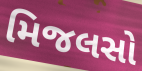
મિજલસો